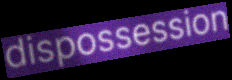
dispossession